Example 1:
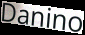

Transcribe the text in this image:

Danino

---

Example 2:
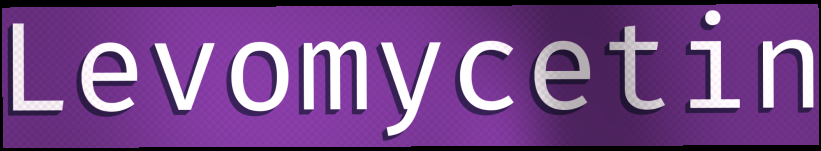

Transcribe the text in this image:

Levomycetin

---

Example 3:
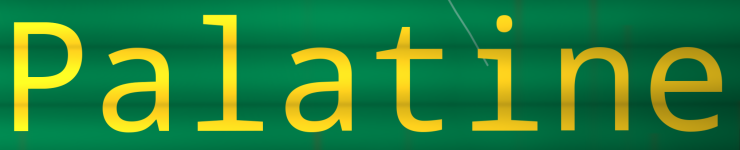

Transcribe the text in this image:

Palatine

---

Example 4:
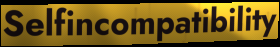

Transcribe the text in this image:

Selfincompatibility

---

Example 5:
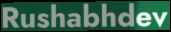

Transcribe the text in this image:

Rushabhdev